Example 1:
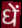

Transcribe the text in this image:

धें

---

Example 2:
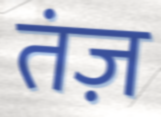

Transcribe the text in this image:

तंज़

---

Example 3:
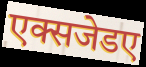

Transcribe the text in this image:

एक्सजेडए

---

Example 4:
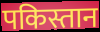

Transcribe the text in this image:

पकिस्तान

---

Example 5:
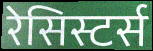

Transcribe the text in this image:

रेसिस्टर्स